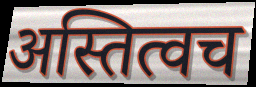
अस्तित्वच